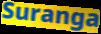
Suranga